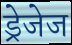
ड्रेजेज